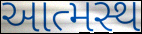
આત્મસ્થ